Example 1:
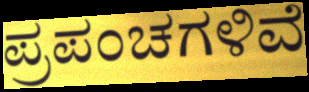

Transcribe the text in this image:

ಪ್ರಪಂಚಗಳಿವೆ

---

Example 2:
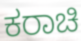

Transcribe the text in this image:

ಕರಾಚಿ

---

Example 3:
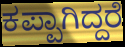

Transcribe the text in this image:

ಕಪ್ಪಾಗಿದ್ದರೆ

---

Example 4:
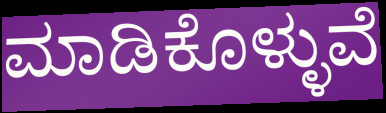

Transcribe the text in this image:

ಮಾಡಿಕೊಳ್ಳುವೆ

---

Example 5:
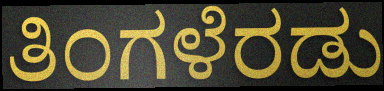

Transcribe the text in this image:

ತಿಂಗಳೆರಡು